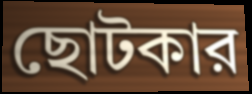
ছোটকার